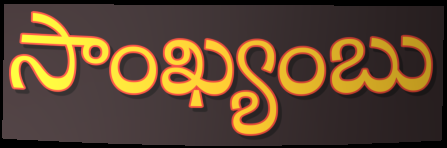
సాంఖ్యంబు